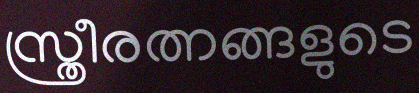
സ്ത്രീരത്നങ്ങളുടെ